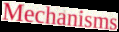
Mechanisms